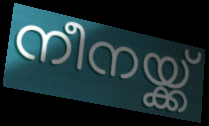
നീനയ്ക്ക്